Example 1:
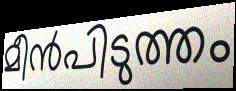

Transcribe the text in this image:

മീൻപിടുത്തം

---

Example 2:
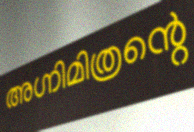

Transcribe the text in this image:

അഗ്നിമിത്രന്റെ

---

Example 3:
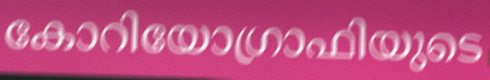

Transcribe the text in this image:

കോറിയോഗ്രാഫിയുടെ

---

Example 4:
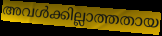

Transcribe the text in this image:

അവൾക്കില്ലാത്തതായ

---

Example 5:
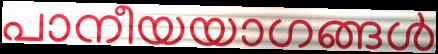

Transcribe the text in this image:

പാനീയയാഗങ്ങൾ